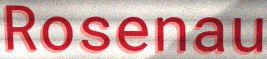
Rosenau